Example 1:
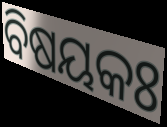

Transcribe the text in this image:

ବିଷୟକଃ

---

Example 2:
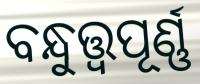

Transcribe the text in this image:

ବନ୍ଧୁତ୍ତ୍ୱପୂର୍ଣ୍ଣ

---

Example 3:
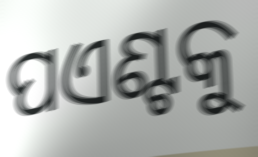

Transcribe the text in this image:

ପଏଣ୍ଟକୁ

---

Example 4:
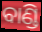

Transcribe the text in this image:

ବାଣ୍ଡି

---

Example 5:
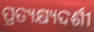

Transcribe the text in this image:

ପ୍ରତ୍ୟକ୍ଷ୍ୟଦର୍ଶୀ